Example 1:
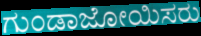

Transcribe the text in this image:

ಗುಂಡಾಜೋಯಿಸರು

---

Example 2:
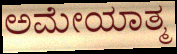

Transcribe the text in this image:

ಅಮೇಯಾತ್ಮ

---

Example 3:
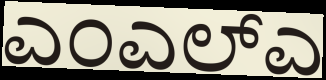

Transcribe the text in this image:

ಎಂಎಲ್ಎ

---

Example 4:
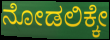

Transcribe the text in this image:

ನೋಡಲಿಕ್ಕೇ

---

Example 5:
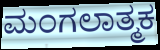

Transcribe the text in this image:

ಮಂಗಲಾತ್ಮಕ